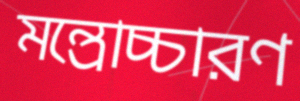
মন্ত্রোচ্চারণ